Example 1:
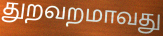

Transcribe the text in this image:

துறவறமாவது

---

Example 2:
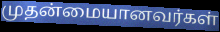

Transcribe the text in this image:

முதன்மையானவர்கள்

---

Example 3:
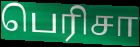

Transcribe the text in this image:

பெரிசா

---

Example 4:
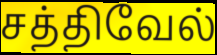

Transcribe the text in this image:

சத்திவேல்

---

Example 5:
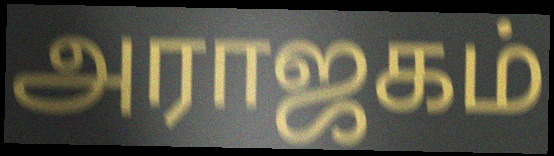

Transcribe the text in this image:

அராஜகம்